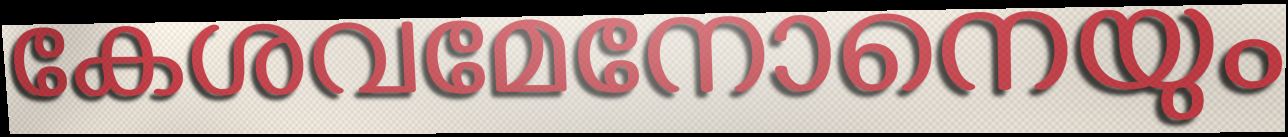
കേശവമേനോനെയും